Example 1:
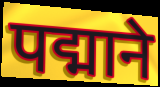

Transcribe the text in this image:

पद्माने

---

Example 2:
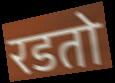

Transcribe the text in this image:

रडतो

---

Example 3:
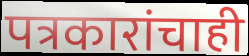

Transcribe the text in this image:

पत्रकारांचाही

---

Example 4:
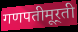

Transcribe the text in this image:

गणपतीमूर्ती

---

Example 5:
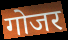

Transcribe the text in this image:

गोजर